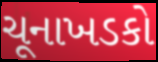
ચૂનાખડકો